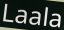
Laala